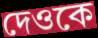
দেওকে